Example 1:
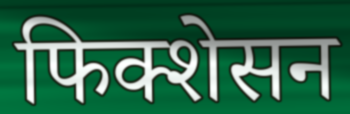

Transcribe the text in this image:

फिक्शेसन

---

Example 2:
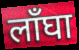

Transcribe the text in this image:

लाँघा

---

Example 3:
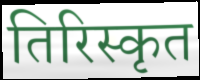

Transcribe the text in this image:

तिरिस्कृत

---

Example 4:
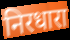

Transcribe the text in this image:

निरधारा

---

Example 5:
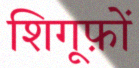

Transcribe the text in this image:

शिगूफ़ों